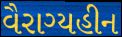
વૈરાગ્યહીન